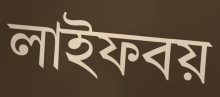
লাইফবয়